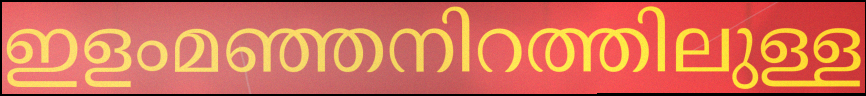
ഇളംമഞ്ഞനിറത്തിലുള്ള